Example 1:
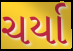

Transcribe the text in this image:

ચર્યા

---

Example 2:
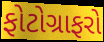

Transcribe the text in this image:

ફોટોગ્રાફરો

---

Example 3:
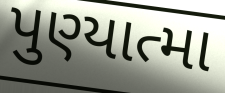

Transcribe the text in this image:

પુણ્યાત્મા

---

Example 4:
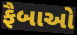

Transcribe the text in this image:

ફૈબાઓ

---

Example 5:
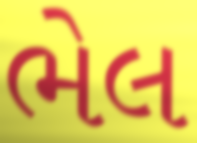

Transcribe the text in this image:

ભેલ